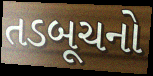
તડબૂચનો